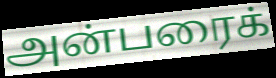
அன்பரைக்